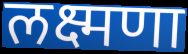
लक्ष्मणा